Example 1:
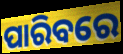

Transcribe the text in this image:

ପାରିବରେ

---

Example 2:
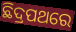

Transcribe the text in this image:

ଛିଦ୍ରପଥରେ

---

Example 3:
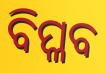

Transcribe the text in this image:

ବିପ୍ଳବ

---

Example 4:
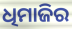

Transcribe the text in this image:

ଧିମାଜିର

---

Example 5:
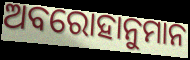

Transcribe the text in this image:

ଅବରୋହାନୁମାନ